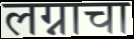
लग्नाचा